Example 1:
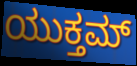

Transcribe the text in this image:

ಯುಕ್ತಮ್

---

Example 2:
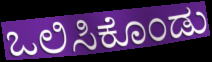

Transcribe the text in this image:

ಒಲಿಸಿಕೊಂಡು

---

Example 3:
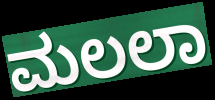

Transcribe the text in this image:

ಮಲಲಾ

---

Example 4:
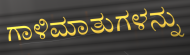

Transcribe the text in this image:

ಗಾಳಿಮಾತುಗಳನ್ನು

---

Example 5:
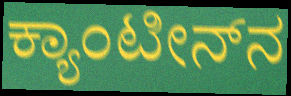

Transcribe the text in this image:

ಕ್ಯಾಂಟೀನ್‌ನ